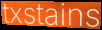
txstains